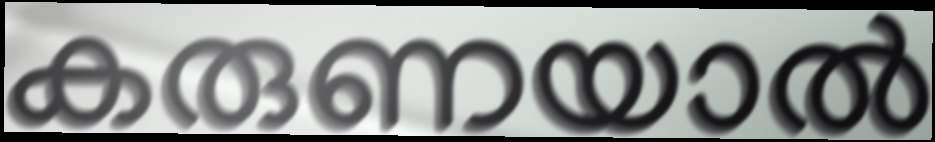
കരുണയാൽ